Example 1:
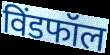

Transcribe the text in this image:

विंडफॉल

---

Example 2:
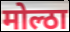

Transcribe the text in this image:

मोल्ठा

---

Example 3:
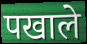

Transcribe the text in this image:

पखाले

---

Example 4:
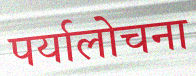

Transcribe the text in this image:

पर्यालोचना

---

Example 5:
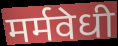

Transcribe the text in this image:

मर्मवेधी